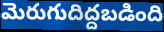
మెరుగుదిద్దబడింది